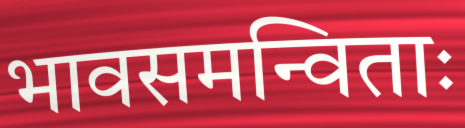
भावसमन्विताः